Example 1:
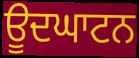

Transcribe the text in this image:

ਊਦਘਾਟਨ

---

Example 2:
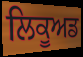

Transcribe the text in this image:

ਲਿਕੂਅਡ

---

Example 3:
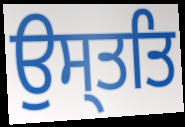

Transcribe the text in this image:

ਉਸ੍ਤਤਿ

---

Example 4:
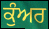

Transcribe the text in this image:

ਕੁੰਅਰ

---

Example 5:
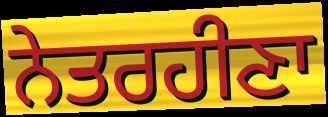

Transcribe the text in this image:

ਨੇਤਰਹੀਣਾ